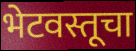
भेटवस्तूचा